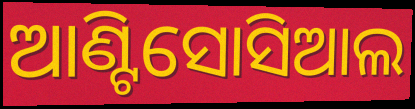
ଆଣ୍ଟିସୋସିଆଲ